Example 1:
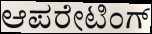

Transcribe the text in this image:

ಆಪರೇಟಿಂಗ್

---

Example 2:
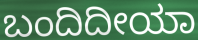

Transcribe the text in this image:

ಬಂದಿದೀಯಾ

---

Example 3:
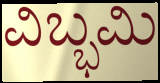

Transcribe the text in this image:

ವಿಬ್ಭಮಿ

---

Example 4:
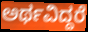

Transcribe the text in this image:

ಅರ್ಥವಿದ್ದರೆ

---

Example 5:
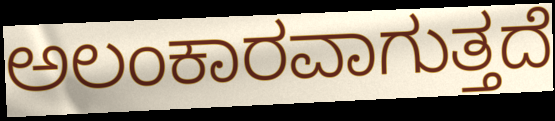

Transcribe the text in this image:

ಅಲಂಕಾರವಾಗುತ್ತದೆ